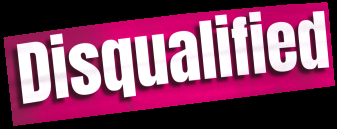
Disqualified